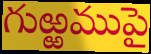
గుఱ్ఱముపై